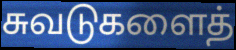
சுவடுகளைத்